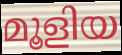
മൂളിയ